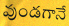
వుండగానే